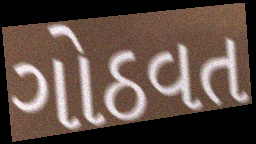
ગોઠવત